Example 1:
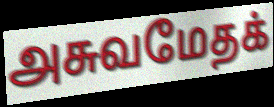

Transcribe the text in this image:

அசுவமேதக்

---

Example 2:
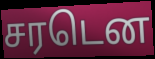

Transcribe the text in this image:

சரடென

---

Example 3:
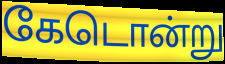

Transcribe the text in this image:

கேடொன்று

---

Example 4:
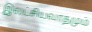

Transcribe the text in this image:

இலட்சியவாதமும்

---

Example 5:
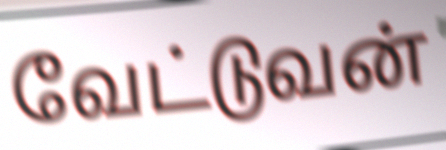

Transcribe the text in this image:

வேட்டுவன்